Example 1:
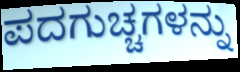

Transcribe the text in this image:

ಪದಗುಚ್ಚಗಳನ್ನು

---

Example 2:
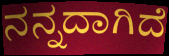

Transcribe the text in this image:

ನನ್ನದಾಗಿದೆ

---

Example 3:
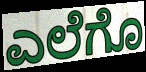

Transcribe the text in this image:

ಎಲೆಗೊ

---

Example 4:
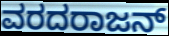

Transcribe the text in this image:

ವರದರಾಜನ್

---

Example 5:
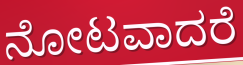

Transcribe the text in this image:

ನೋಟವಾದರೆ